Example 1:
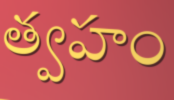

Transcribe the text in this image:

త్వహం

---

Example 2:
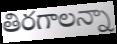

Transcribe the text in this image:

తిరగాలన్నా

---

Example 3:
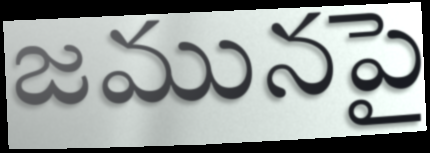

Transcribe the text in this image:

జమునపై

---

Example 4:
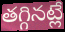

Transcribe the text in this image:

తగ్గినట్లే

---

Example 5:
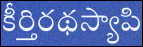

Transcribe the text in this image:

కీర్తిరథస్యాపి